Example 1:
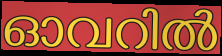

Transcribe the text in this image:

ഓവറിൽ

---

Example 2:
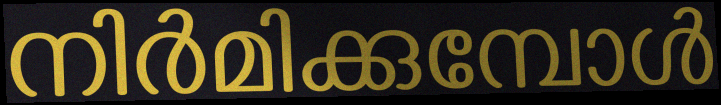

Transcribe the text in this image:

നിർമിക്കുമ്പോൾ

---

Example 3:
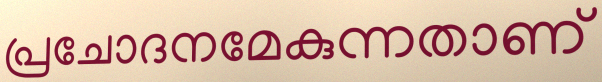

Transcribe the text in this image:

പ്രചോദനമേകുന്നതാണ്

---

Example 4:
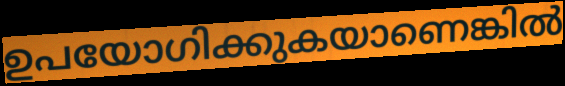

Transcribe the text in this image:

ഉപയോഗിക്കുകയാണെങ്കിൽ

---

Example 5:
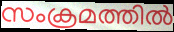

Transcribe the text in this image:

സംക്രമത്തിൽ